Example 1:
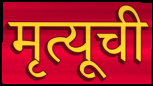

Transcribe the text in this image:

मृत्यूची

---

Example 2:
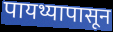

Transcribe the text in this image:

पायथ्यापासून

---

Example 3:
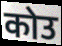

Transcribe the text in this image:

कोउ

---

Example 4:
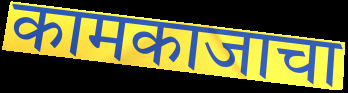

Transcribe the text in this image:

कामकाजाचा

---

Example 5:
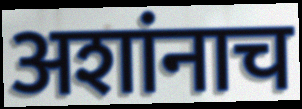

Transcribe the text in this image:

अशांनाच